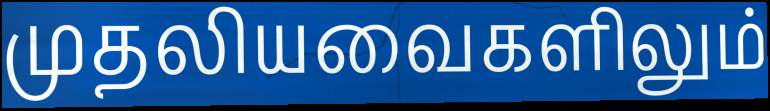
முதலியவைகளிலும்